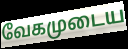
வேகமுடைய